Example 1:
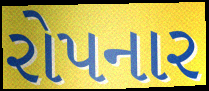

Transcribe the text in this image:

રોપનાર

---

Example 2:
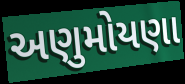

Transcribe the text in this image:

અણુમોયણા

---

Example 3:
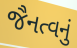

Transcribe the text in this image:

જૈનત્વનું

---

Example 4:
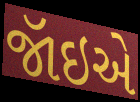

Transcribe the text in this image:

જૉઇએ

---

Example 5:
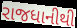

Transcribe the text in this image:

રાજધાનીથી